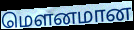
மௌனமான